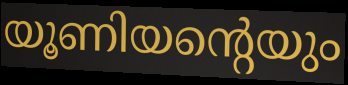
യൂണിയന്റെയും